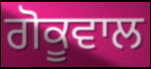
ਗੋਕੂਵਾਲ